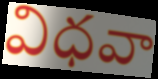
విధవా